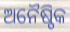
ଅନୈଷ୍ଠିକ